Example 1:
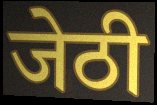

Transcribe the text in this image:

जेठी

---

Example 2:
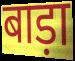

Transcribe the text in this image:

बाड़ा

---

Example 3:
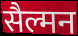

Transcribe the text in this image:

सैल्मन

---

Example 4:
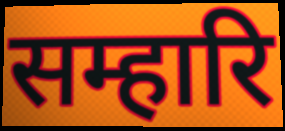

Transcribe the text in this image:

सम्हारि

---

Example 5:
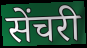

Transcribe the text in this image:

सेंचरी